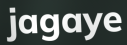
jagaye